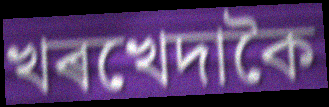
খৰখেদাকৈ